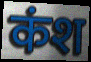
कंश